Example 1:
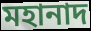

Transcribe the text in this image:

মহানাদ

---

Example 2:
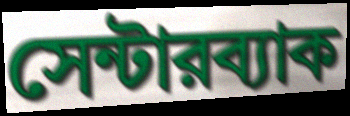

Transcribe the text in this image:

সেন্টারব্যাক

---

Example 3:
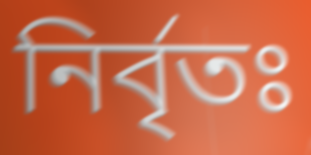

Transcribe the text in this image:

নির্বৃতঃ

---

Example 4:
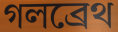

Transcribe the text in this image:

গলব্রেথ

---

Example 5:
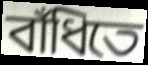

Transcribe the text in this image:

বাঁধিতে